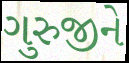
ગુરુજીને